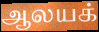
ஆலயக்